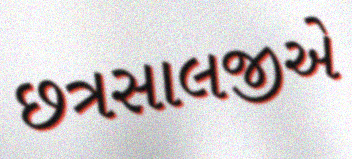
છત્રસાલજીએ